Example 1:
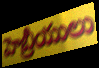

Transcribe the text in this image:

హెబ్రీయులు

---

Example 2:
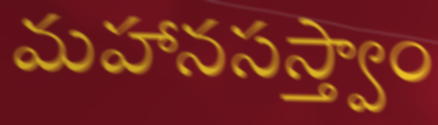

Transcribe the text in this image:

మహానసస్త్వాం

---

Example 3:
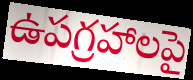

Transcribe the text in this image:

ఉపగ్రహాలపై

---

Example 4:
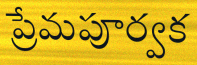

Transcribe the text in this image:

ప్రేమపూర్వక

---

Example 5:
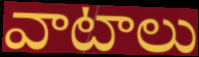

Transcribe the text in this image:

వాటాలు